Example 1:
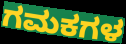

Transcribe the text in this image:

ಗಮಕಗಳ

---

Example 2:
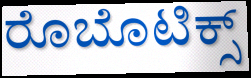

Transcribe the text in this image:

ರೊಬೊಟಿಕ್ಸ್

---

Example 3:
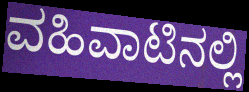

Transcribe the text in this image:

ವಹಿವಾಟಿನಲ್ಲಿ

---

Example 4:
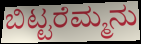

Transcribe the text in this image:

ಬಿಟ್ಟರೆಮ್ಮನು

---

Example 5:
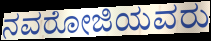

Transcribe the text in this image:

ನವರೋಜಿಯವರು